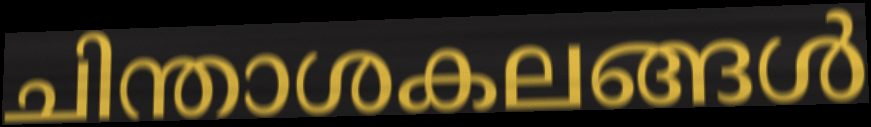
ചിന്താശകലങ്ങൾ